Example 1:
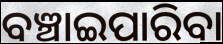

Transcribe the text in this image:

ବଞ୍ଚାଇପାରିବା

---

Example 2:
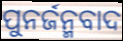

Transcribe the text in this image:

ପୁନର୍ଜନ୍ମବାଦ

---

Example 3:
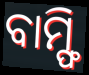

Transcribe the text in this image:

ବାମ୍ଫି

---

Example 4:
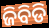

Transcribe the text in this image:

ଜିବିଡି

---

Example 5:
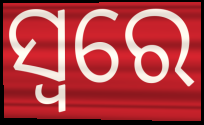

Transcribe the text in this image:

ସ୍ବରେ